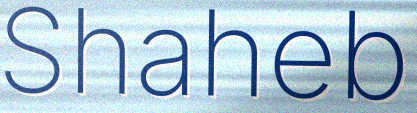
Shaheb